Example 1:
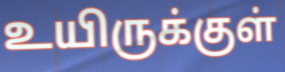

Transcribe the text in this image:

உயிருக்குள்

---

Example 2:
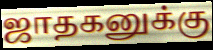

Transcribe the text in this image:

ஜாதகனுக்கு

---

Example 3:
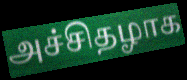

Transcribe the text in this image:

அச்சிதழாக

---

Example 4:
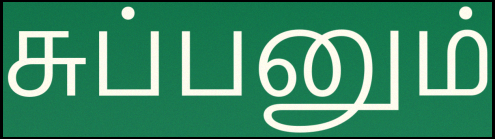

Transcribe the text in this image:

சுப்பனும்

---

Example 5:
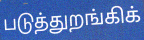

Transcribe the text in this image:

படுத்துறங்கிக்